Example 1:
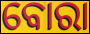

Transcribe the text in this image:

ବୋରା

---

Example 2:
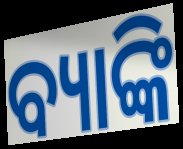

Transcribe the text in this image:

ବ୍ୟାଙ୍କି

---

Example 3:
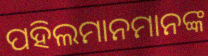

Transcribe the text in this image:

ପହିଲମାନମାନଙ୍କ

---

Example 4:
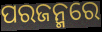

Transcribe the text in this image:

ପରଜନ୍ମରେ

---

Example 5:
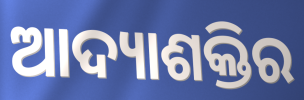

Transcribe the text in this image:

ଆଦ୍ୟାଶକ୍ତିର